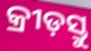
କ୍ରୀଡ଼ସ୍ତୁ